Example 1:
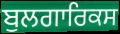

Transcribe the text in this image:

ਬੁਲਗਾਰਿਕਸ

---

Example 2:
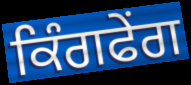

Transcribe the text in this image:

ਕਿੰਗਫੇਂਗ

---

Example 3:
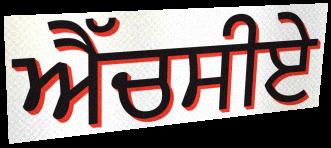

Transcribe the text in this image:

ਐੱਚਸੀਏ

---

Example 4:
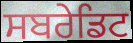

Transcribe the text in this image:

ਸਬਰੇਡਿਟ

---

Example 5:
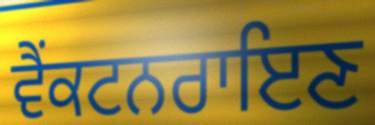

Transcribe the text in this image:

ਵੈਂਕਟਨਰਾਇਣ